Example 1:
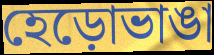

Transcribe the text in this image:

হেড়োভাঙা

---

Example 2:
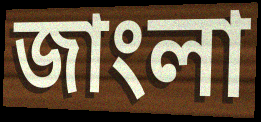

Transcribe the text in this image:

জাংলা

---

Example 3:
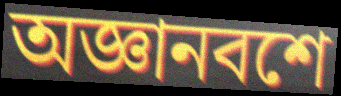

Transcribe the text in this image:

অজ্ঞানবশে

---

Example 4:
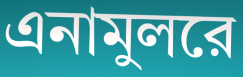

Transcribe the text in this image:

এনামুলরে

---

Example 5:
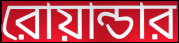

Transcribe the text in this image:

রোয়ান্ডার